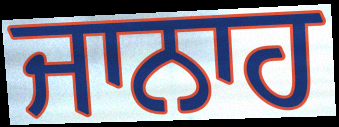
ਜਾਨਾਹ